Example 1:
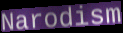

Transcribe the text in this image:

Narodism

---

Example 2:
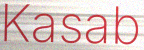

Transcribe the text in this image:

Kasab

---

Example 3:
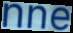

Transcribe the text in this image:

nne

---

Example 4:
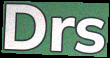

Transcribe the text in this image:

Drs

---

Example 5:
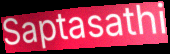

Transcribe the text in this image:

Saptasathi